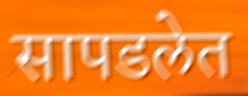
सापडलेत